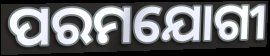
ପରମଯୋଗୀ